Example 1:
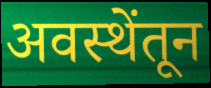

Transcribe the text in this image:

अवस्थेंतून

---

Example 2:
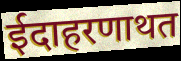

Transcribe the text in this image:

ईदाहरणाथत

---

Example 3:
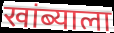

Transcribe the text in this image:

खांब्याला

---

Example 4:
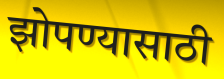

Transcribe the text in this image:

झोपण्यासाठी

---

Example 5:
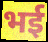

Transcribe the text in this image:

भई